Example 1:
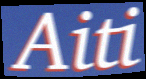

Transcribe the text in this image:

Aiti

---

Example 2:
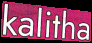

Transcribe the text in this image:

kalitha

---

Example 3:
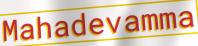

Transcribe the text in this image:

Mahadevamma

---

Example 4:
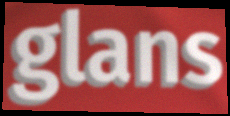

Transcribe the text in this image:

glans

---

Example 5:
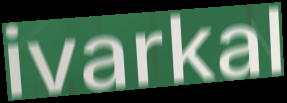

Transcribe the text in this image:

ivarkal